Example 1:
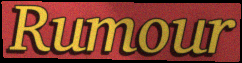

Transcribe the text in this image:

Rumour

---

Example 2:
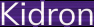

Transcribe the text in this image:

Kidron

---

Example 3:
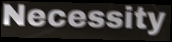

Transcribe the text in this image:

Necessity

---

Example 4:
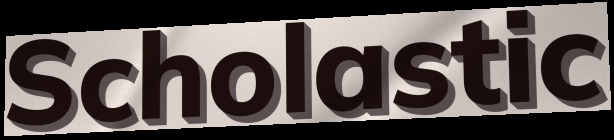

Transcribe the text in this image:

Scholastic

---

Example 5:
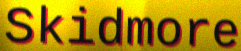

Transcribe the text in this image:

Skidmore